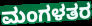
ಮಂಗಳತರ